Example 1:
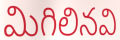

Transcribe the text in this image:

మిగిలినవి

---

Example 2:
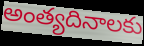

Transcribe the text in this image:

అంత్యదినాలకు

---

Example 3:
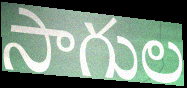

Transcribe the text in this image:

సాగుల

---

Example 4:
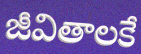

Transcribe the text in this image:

జీవితాలకే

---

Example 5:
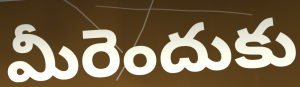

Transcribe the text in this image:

మీరెందుకు